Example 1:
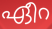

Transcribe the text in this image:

ഏീറ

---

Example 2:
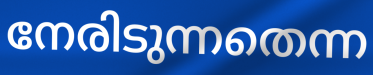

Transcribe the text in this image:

നേരിടുന്നതെന്ന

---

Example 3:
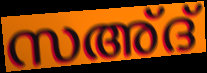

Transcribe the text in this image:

സഅ്ദ്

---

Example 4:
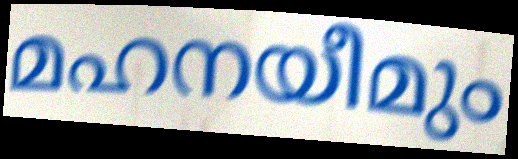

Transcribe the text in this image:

മഹനയീമും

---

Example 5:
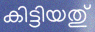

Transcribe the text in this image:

കിട്ടിയതു്